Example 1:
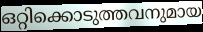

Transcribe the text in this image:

ഒറ്റിക്കൊടുത്തവനുമായ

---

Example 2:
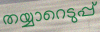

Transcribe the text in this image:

തയ്യാറെടുപ്പ്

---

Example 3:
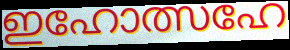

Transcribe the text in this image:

ഇഹോത്സഹേ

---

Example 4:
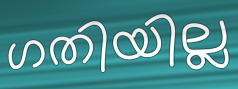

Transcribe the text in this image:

ഗതിയില്ല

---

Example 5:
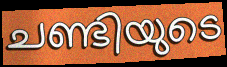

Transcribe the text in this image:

ചണ്ടിയുടെ